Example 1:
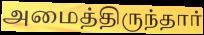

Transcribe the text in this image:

அமைத்திருந்தார்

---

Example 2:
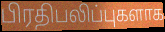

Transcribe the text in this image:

பிரதிபலிப்புகளாக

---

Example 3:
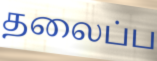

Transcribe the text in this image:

தலைப்ப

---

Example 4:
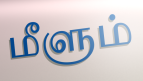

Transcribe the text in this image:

மீளும்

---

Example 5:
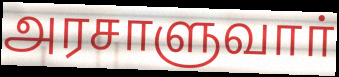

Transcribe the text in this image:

அரசாளுவார்